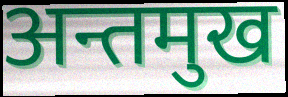
अन्तमुख